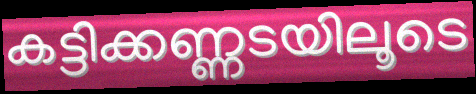
കട്ടിക്കണ്ണടയിലൂടെ